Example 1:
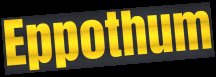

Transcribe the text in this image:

Eppothum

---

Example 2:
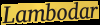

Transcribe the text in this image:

Lambodar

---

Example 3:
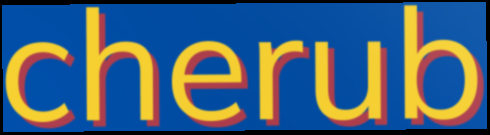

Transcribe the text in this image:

cherub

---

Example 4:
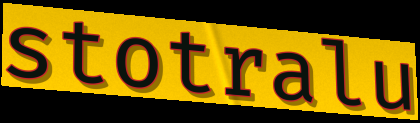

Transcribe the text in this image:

stotralu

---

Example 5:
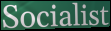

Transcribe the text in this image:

Socialist